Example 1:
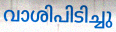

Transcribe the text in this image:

വാശിപിടിച്ചു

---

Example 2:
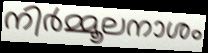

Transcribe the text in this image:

നിർമ്മൂലനാശം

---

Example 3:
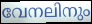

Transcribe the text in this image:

വേനലിനും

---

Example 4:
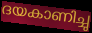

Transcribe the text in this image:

ദയകാണിച്ചു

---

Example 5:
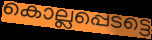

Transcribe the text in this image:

കൊല്ലപ്പെടട്ടെ